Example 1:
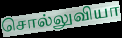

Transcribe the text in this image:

சொல்லுவியா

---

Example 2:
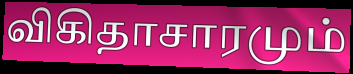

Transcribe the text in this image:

விகிதாசாரமும்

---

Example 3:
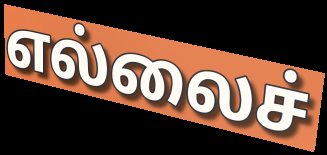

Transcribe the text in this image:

எல்லைச்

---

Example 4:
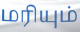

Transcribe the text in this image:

மரியும்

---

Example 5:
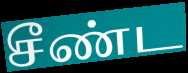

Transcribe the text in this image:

சீண்ட